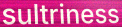
sultriness